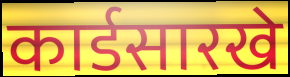
कार्डसारखे